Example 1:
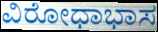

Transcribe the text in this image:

ವಿರೋಧಾಭಾಸ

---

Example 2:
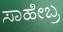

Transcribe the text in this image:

ಸಾಹೇಬ್ರ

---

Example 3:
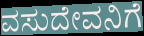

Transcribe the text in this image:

ವಸುದೇವನಿಗೆ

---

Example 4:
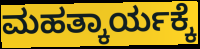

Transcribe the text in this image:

ಮಹತ್ಕಾರ್ಯಕ್ಕೆ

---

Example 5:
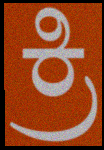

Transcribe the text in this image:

ಕ್ರಿ